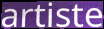
artiste